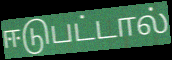
ஈடுபட்டால்